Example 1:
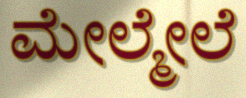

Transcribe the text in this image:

ಮೇಲ್ಮೇಲೆ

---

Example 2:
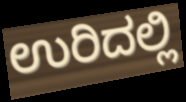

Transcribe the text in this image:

ಉರಿದಲ್ಲಿ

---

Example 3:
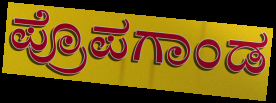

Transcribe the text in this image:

ಪ್ರೊಪಗಾಂಡ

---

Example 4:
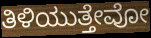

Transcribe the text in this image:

ತಿಳಿಯುತ್ತೇವೋ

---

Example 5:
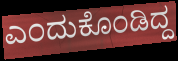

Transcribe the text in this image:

ಎಂದುಕೊಂಡಿದ್ದ